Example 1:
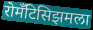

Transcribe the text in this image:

रोमँटिसिझमला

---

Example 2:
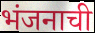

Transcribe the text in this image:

भंजनाची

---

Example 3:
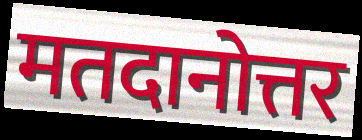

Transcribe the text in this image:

मतदानोत्तर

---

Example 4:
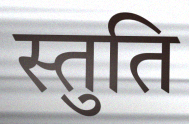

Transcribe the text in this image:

स्तुति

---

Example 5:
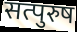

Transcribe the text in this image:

सत्पुरुष